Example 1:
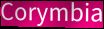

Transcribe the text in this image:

Corymbia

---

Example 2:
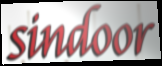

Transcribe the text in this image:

sindoor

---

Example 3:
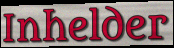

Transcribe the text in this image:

Inhelder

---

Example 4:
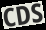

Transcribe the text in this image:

CDS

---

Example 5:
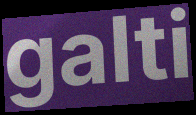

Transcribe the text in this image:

galti